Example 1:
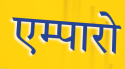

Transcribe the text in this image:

एम्पारो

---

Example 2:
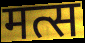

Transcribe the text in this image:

मत्स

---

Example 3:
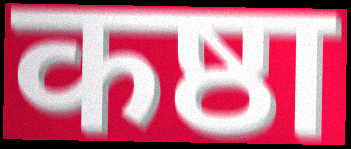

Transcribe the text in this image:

कष्ठा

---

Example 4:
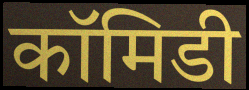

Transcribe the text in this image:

कॉमिडी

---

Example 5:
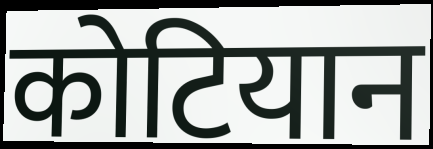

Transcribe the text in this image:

कोटियान